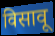
विसावू